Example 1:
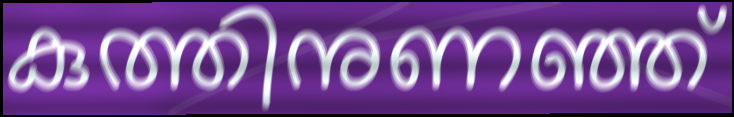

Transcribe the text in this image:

കുത്തിനുണഞ്ഞ്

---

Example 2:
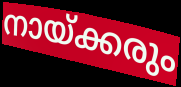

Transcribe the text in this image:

നായ്ക്കരും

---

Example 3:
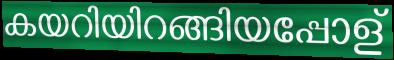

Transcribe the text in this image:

കയറിയിറങ്ങിയപ്പോള്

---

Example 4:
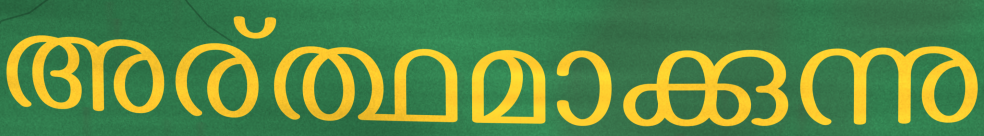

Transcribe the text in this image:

അര്ത്ഥമാക്കുന്നു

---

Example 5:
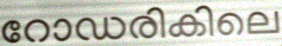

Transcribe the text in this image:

റോഡരികിലെ